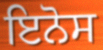
ਇਨੋਸ